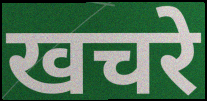
खचरे